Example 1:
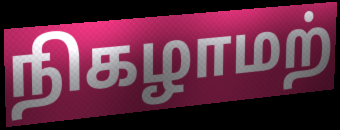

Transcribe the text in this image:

நிகழாமற்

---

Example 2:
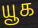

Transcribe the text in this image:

யூக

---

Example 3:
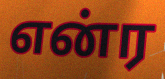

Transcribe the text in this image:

என்ர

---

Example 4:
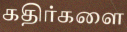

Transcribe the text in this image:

கதிர்களை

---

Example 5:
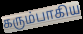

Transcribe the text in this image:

கரும்பாகிய